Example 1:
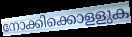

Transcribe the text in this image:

നോക്കിക്കൊളളുക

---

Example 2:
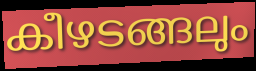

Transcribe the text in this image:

കീഴടങ്ങലും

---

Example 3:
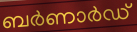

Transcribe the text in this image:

ബർണാർഡ്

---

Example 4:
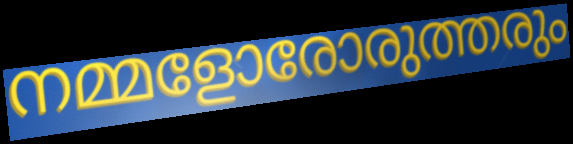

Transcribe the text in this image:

നമ്മളോരോരുത്തരും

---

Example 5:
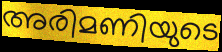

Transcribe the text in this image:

അരിമണിയുടെ